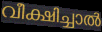
വീക്ഷിച്ചാൽ